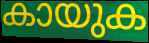
കായുക